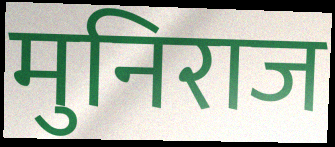
मुनिराज